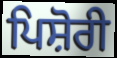
ਪਿਸ਼ੋਰੀ